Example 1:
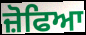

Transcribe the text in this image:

ਜ਼ੋਫਿਆ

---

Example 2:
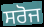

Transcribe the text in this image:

ਸਰੋਜ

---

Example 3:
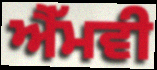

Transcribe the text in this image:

ਐੱਮਵੀ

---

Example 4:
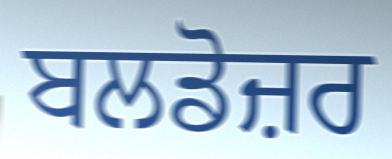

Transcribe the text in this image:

ਬਲਡੋਜ਼ਰ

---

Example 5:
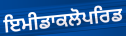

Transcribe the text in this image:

ਇਮੀਡਾਕਲੋਪਰਿਡ